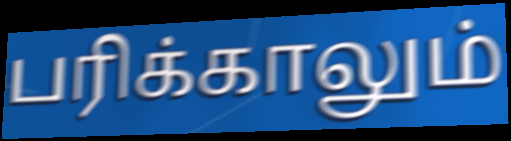
பரிக்காலும்